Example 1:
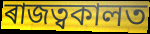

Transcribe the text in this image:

ৰাজত্বকালত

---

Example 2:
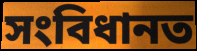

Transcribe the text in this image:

সংবিধানত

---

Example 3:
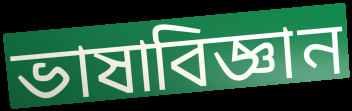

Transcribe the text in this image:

ভাষাবিজ্ঞান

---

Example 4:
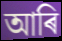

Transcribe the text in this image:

আৰি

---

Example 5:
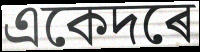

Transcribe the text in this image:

একেদৰে